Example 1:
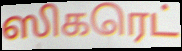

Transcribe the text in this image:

ஸிகரெட்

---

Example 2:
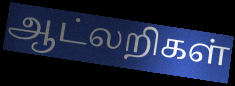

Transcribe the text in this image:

ஆட்லறிகள்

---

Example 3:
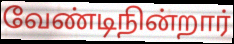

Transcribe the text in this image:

வேண்டிநின்றார்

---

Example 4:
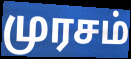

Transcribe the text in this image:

முரசம்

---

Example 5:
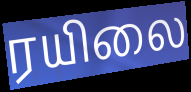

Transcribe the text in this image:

ரயிலை